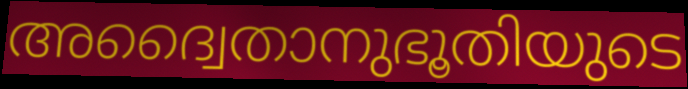
അദ്വൈതാനുഭൂതിയുടെ